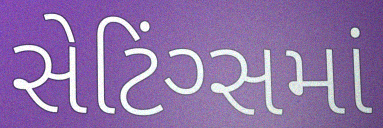
સેટિંગ્સમાં